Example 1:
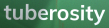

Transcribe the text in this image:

tuberosity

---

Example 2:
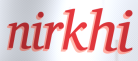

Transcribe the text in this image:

nirkhi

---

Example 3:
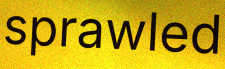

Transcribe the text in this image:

sprawled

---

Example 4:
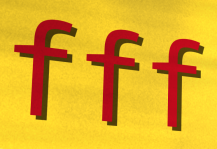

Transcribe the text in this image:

fff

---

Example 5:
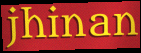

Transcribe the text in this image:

jhinan